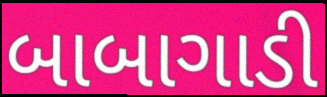
બાબાગાડી